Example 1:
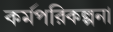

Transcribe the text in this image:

কর্মপরিকল্পনা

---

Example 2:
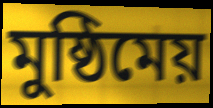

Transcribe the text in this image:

মুষ্ঠিমেয়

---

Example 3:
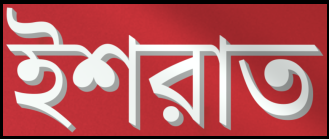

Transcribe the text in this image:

ইশরাত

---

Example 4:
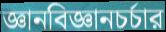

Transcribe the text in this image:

জ্ঞানবিজ্ঞানচর্চার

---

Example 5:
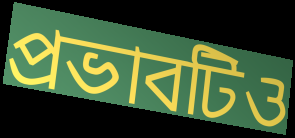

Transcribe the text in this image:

প্রভাবটিও